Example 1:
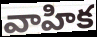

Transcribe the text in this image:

వాహిక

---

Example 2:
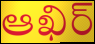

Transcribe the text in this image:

ఆఖిర్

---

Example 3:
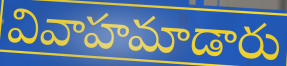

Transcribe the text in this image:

వివాహమాడారు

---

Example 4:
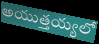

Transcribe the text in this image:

అయుత్తయ్యలో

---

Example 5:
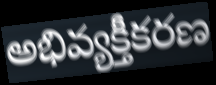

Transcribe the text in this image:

అభివ్యక్తీకరణ